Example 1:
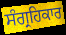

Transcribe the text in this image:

ਸੰਗ੍ਰਹਿਕਾਰ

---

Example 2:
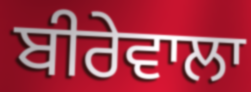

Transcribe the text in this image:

ਬੀਰੇਵਾਲਾ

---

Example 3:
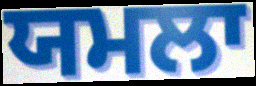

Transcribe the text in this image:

ਯਮਲਾ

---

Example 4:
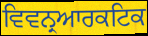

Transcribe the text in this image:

ਵਿਵਨ੍ਰਆਰਕਟਿਕ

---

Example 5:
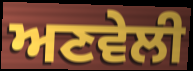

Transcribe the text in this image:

ਅਣਵੇਲੀ